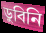
ডুবিনি